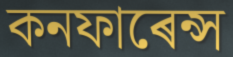
কনফাৰেন্স